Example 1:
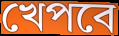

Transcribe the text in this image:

খেপবে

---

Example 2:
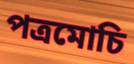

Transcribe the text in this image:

পত্রমোচি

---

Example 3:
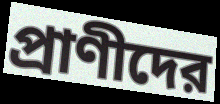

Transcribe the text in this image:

প্রাণীদের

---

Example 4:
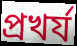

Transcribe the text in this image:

প্রখর্য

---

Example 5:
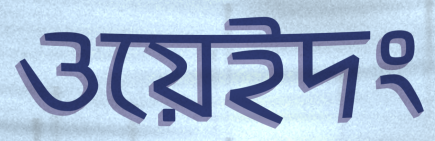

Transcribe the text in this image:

ওয়েইদং